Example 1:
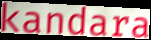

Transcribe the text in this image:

kandara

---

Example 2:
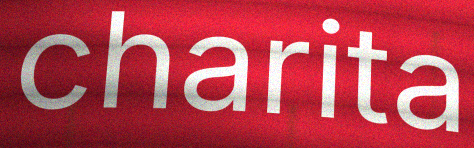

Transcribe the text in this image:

charita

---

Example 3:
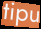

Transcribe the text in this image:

tipu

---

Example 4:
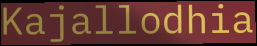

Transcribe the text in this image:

Kajallodhia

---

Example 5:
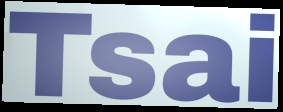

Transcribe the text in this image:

Tsai